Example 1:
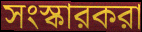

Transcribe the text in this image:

সংস্কারকরা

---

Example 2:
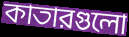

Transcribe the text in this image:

কাতারগুলো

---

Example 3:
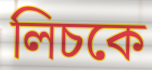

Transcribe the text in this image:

লিচকে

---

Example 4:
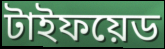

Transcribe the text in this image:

টাইফয়েড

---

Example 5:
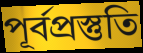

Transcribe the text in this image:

পূর্বপ্রস্তুতি